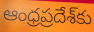
ఆంధ్రప్రదేశ్‌కు